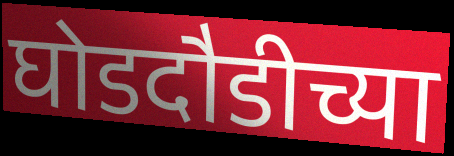
घोडदौडीच्या